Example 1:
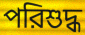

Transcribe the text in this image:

পরিশুদ্ধ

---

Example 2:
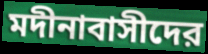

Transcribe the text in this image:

মদীনাবাসীদের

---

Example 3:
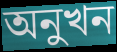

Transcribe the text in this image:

অনুখন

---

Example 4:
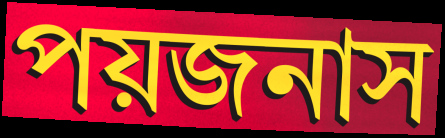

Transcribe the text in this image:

পয়জনাস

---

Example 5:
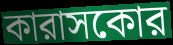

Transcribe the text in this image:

কারাসকোর